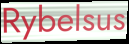
Rybelsus